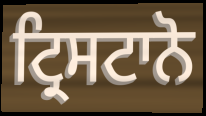
ਟ੍ਰਿਸਟਾਨੋ